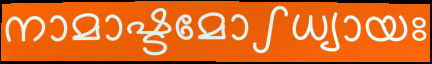
നാമാഷ്ടമോഽധ്യായഃ